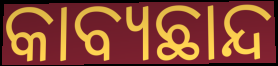
କାବ୍ୟଛାନ୍ଦ